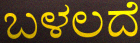
ಬಳಲದೆ